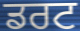
ਡਰਟ